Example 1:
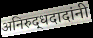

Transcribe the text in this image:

अनिरुद्धदादांनी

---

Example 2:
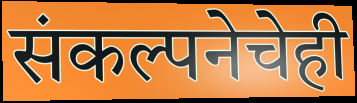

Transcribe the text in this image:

संकल्पनेचेही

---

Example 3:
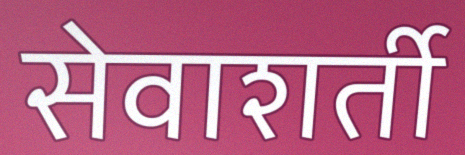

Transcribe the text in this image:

सेवाशर्ती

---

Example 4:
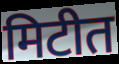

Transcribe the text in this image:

मिटीत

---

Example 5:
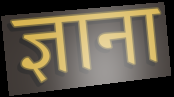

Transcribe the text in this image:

ज्ञाना